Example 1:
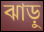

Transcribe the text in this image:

ঝাড়ু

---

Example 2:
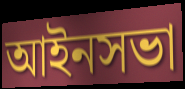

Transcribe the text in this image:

আইনসভা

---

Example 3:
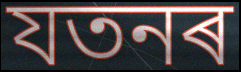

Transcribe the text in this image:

যতনৰ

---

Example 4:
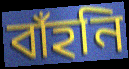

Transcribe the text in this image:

বাঁহনি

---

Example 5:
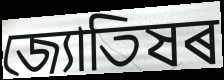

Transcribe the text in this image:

জ্যোতিষৰ